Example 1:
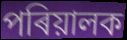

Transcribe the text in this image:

পৰিয়ালক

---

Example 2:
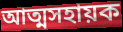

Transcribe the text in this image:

আত্মসহায়ক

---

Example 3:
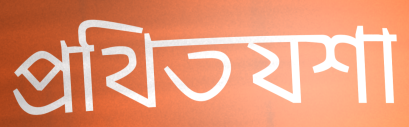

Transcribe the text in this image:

প্ৰথিতযশা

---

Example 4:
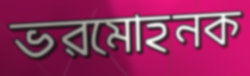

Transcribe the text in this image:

ভৱমোহনক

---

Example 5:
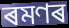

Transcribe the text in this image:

ৰমণৰ